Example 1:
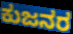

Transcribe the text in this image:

ಕುಜನರ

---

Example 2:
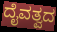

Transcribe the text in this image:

ದೈವತ್ವದ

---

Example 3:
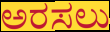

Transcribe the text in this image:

ಅರಸಲು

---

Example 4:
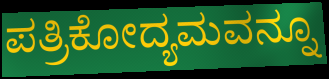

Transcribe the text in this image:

ಪತ್ರಿಕೋದ್ಯಮವನ್ನೂ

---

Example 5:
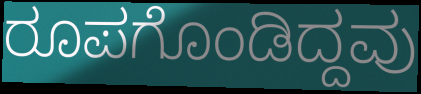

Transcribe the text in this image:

ರೂಪಗೊಂಡಿದ್ದವು